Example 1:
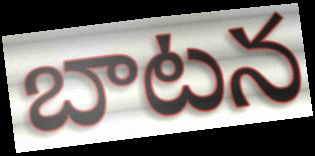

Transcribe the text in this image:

బాటన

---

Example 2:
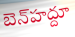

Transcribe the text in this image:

బెన్‍హద్దూ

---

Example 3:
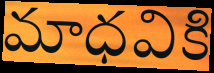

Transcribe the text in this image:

మాధవికి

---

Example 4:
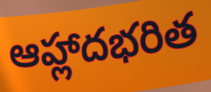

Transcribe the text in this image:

ఆహ్లాదభరిత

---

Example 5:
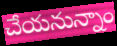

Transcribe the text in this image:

చేయనున్నాం